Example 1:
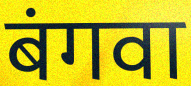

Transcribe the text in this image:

बंगवा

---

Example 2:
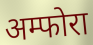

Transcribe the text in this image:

अम्फोरा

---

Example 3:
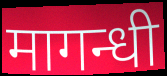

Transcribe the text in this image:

मागन्धी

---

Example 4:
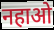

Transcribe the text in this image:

नहाओ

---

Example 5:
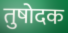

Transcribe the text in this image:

तुषोदक